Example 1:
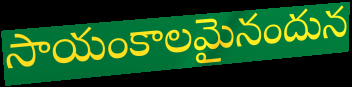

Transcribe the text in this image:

సాయంకాలమైనందున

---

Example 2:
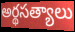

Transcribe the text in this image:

అర్థసత్యాలు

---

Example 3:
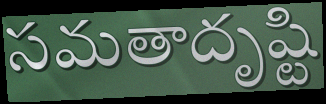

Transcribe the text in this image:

సమతాదృష్టి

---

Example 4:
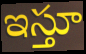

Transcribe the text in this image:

ఇస్తూ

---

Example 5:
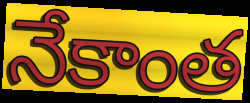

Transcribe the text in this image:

నేకాంత